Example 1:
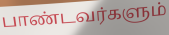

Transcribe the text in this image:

பாண்டவர்களும்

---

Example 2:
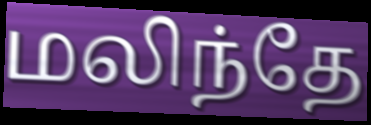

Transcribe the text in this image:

மலிந்தே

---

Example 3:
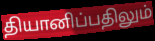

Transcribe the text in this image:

தியானிப்பதிலும்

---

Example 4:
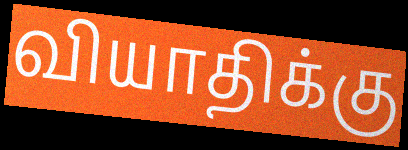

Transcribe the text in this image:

வியாதிக்கு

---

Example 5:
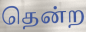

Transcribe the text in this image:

தென்ற